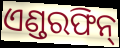
ଏଣ୍ଡରଫିନ୍